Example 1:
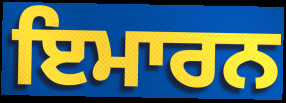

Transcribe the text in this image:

ਇਮਾਰਨ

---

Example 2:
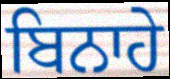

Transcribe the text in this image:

ਬਿਨਾਹੇ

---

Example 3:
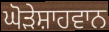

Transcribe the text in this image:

ਘੋੜੇਸ਼ਾਹਵਾਨ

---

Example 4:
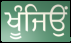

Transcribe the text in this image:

ਖੂੰਜਿਉਂ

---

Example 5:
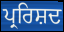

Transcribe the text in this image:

ਪ੍ਰਰਿਸ਼ਦ